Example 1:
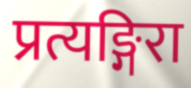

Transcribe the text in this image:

प्रत्यङ्गिरा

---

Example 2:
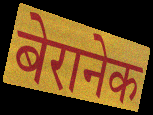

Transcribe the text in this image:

बेरानेक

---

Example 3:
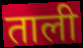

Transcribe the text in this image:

ताली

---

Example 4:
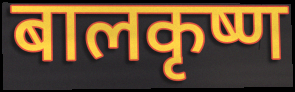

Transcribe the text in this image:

बालकृष्ण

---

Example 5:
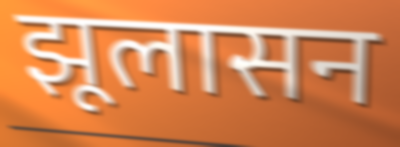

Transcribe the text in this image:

झूलासन